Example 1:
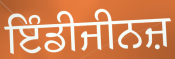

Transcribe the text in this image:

ਇੰਡੀਜੀਨਜ਼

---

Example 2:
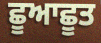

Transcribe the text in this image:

ਛੂਆਛੂਤ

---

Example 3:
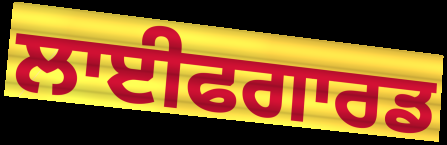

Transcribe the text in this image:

ਲਾਈਫਗਾਰਡ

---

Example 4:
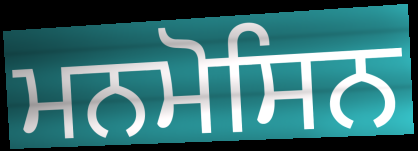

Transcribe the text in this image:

ਮਨਮੋਸਿਨ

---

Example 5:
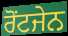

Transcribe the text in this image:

ਰੋਂਟਜੇਨ